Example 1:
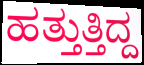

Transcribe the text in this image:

ಹತ್ತುತ್ತಿದ್ದ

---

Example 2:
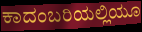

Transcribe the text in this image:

ಕಾದಂಬರಿಯಲ್ಲಿಯೂ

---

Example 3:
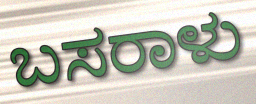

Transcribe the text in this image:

ಬಸರಾಳು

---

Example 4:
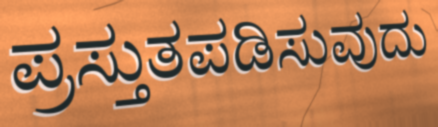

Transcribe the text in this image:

ಪ್ರಸ್ತುತಪಡಿಸುವುದು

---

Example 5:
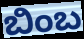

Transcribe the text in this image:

ಬಿಂಬ